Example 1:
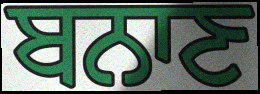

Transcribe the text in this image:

ਬਨਾਣ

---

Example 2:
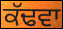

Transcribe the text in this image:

ਕੱਢਵਾ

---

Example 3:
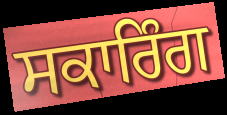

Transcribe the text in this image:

ਸਕਾਰਿੰਗ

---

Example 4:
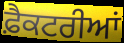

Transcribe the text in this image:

ਫ਼ੈਕਟਰੀਆਂ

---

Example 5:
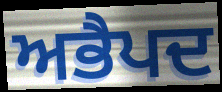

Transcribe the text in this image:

ਅਭੈਪਦ